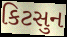
કિટસુન